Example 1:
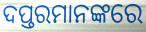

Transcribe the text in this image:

ଦପ୍ତରମାନଙ୍କରେ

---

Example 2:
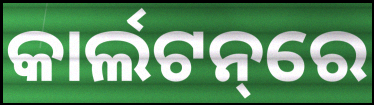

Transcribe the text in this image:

କାର୍ଲଟନ୍‌ରେ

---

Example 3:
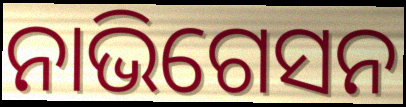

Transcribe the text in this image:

ନାଭିଗେସନ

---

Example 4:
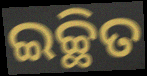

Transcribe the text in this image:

ଇଚ୍ଛିତ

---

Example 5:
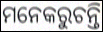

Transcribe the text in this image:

ମନେକରୁଚନ୍ତି